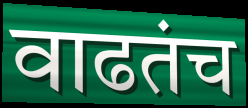
वाढतंच